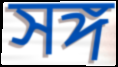
সঙ্গ